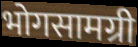
भोगसामग्री